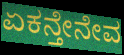
ಏಕನ್ತೇನೇವ